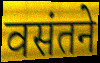
वसंतने